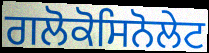
ਗਲੋਕੋਸਿਨੋਲੇਟ